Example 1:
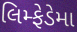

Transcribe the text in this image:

લિમ્ફેડેમા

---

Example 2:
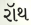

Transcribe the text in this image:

રૉથ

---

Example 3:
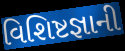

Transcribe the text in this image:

વિશિષ્ટજ્ઞાની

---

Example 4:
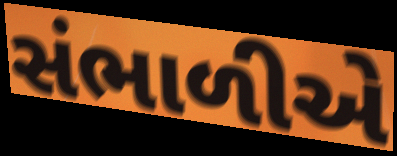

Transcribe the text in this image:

સંભાળીએ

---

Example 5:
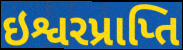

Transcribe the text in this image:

ઇશ્વરપ્રાપ્તિ